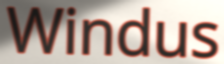
Windus